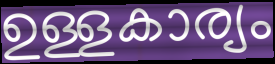
ഉള്ളകാര്യം